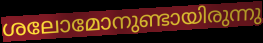
ശലോമോനുണ്ടായിരുന്നു